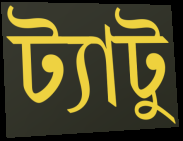
ট্যাটু